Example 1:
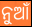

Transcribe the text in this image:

ନୁଆଁ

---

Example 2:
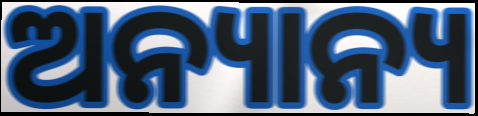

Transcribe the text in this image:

ଅନ୍ୟାନ୍ୟ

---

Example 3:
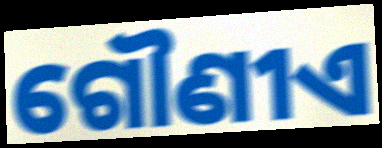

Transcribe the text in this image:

ଗୌଣୀଏ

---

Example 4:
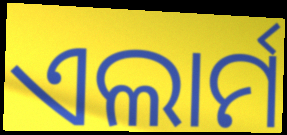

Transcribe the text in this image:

ଏଲାର୍ମ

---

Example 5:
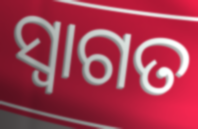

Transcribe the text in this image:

ସ୍ୱାଗତ